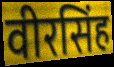
वीरसिंह